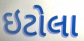
ઇટોલા